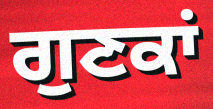
ਗੁਣਕਾਂ